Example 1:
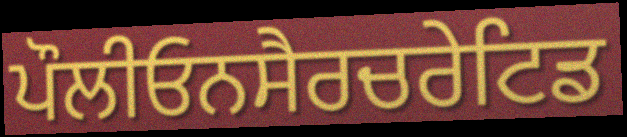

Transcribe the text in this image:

ਪੌਲੀਓਨਸੈਰਚਰੇਟਿਡ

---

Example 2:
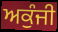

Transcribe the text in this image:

ਅਕੁੰਜੀ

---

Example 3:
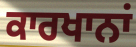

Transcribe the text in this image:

ਕਾਰਖਾਨਾਂ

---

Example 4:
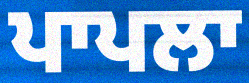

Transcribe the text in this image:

ਪਾਪਲਾ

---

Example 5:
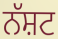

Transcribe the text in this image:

ਨੱਸ਼ਟ